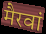
मैरवां